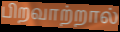
பிறவாற்றால்